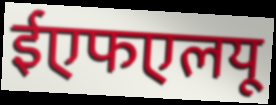
ईएफएलयू